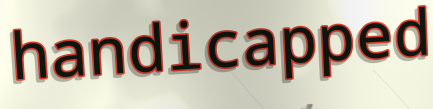
handicapped